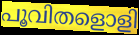
പൂവിതളൊളി